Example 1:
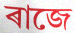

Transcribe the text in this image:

ৰাজে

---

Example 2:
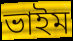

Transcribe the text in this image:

ভাইম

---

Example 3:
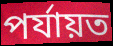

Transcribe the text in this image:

পৰ্যায়ত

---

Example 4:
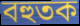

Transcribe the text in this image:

বহুতক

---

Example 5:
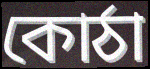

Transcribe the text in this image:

কোঠা